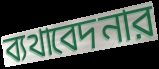
ব্যথাবেদনার